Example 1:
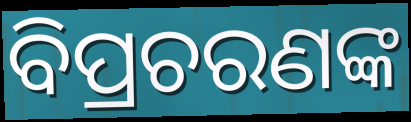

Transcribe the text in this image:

ବିପ୍ରଚରଣଙ୍କ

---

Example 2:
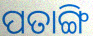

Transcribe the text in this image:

ପତାଙ୍ଗି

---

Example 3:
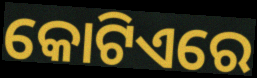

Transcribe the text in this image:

କୋଟିଏରେ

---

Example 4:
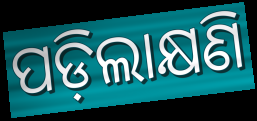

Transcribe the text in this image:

ପଡ଼ିଲାକ୍ଷଣି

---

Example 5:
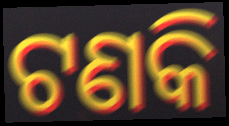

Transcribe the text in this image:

ଟଣକି